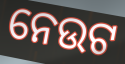
ନେଉଟ